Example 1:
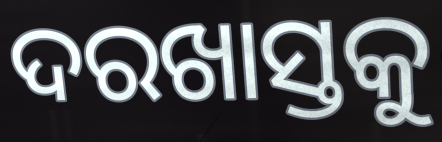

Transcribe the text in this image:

ଦରଖାସ୍ତକୁ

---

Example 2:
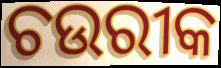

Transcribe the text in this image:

ଚଉରୀକ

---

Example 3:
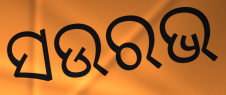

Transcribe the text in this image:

ସଉରଭ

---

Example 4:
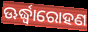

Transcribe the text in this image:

ଊର୍ଦ୍ଧ୍ୱାରୋହଣ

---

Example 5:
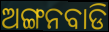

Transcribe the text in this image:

ଅଙ୍ଗନବାଡି